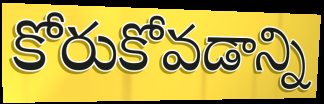
కోరుకోవడాన్ని